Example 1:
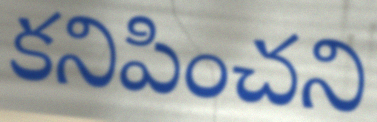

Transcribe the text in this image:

కనిపించని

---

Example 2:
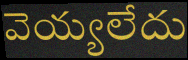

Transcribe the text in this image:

వెయ్యలేదు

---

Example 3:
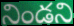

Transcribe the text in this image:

నిండని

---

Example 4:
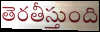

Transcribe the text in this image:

తెరతీస్తుంది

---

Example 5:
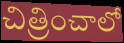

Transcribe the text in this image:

చిత్రించాలో